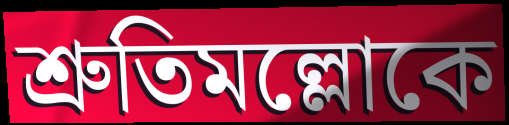
শ্রুতিমল্লোকে